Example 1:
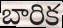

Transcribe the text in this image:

బారిక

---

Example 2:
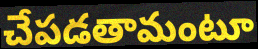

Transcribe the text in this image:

చేపడతామంటూ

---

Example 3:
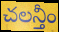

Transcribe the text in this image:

చలన్తీం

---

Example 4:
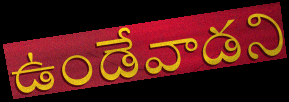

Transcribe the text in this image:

ఉండేవాడని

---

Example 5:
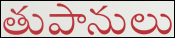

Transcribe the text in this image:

తుపానులు